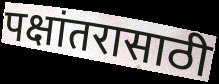
पक्षांतरासाठी